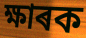
ক্ষাৰক